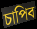
চাপিব